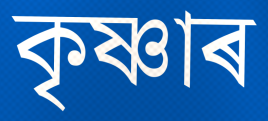
কৃষ্ণাৰ